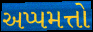
અપ્પમત્તો